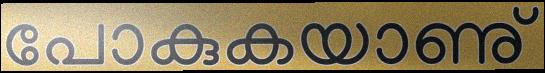
പോകുകയാണു്